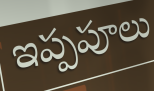
ఇప్పపూలు